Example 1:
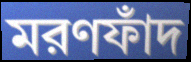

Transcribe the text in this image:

মরণফাঁদ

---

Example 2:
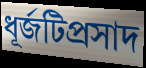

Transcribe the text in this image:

ধূর্জটিপ্রসাদ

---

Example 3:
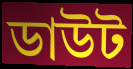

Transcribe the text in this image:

ডাউট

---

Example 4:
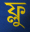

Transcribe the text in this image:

ফ্লু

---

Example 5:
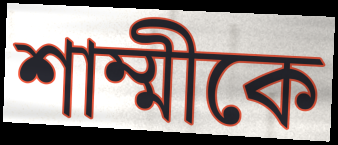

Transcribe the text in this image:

শাম্মীকে